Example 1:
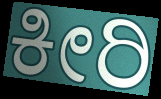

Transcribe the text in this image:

ಕೀರಿ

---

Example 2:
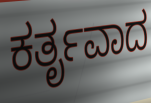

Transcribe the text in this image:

ಕರ್ತೃವಾದ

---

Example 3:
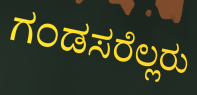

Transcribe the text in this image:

ಗಂಡಸರೆಲ್ಲರು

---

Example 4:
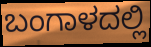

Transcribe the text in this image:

ಬಂಗಾಳದಲ್ಲಿ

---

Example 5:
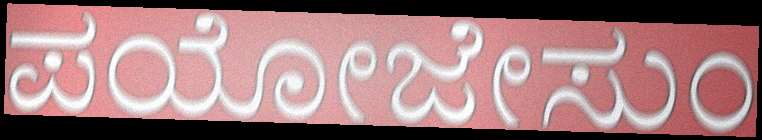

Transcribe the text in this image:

ಪಯೋಜೇಸುಂ